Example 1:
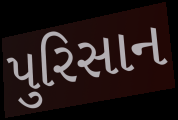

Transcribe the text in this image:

પુરિસાન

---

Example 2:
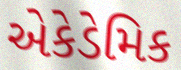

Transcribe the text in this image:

એકેડેમિક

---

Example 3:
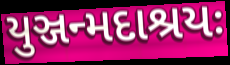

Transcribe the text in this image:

યુઞ્જન્મદાશ્રયઃ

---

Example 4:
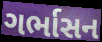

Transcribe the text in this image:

ગર્ભાસન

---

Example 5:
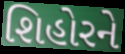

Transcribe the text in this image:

શિહોરને